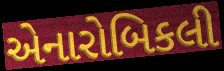
એનારોબિકલી